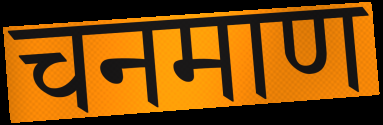
चनमाण